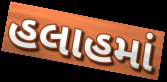
હલાહમાં